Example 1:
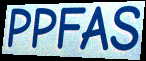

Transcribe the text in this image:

PPFAS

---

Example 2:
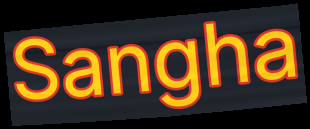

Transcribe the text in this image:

Sangha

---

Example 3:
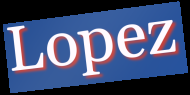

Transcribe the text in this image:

Lopez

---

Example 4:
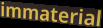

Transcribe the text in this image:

immaterial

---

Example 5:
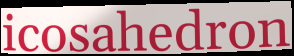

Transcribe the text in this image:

icosahedron